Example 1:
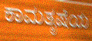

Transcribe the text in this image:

ಕಾಮತೃಷೆಯ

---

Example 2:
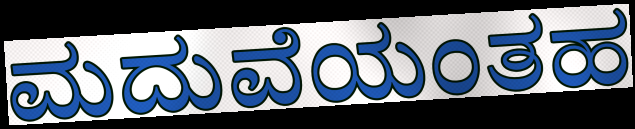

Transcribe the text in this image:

ಮದುವೆಯಂತಹ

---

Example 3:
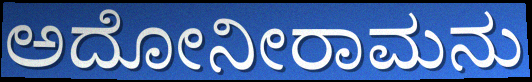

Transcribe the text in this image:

ಅದೋನೀರಾಮನು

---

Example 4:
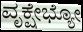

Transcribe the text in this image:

ವೃಕ್ಷೇಭ್ಯೋ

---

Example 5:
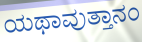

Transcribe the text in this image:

ಯಥಾವುತ್ತಾನಂ